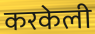
करकेली